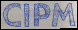
CIPM